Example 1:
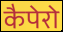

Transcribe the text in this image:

कैपेरो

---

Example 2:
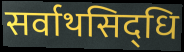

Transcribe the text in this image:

सर्वाथसिद्धि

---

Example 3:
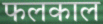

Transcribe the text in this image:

फलकाल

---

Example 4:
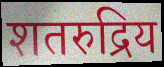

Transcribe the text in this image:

शतरुद्रिय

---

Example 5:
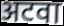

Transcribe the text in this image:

अटवा